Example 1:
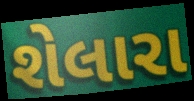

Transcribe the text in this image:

શેલારા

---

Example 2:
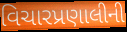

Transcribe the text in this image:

વિચારપ્રણાલીની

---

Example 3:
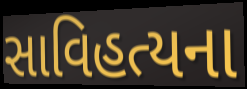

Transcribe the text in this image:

સાવિહત્યના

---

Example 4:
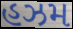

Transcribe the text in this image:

હઝમ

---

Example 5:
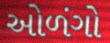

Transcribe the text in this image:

ઓળંગો